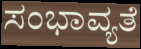
ಸಂಭಾವ್ಯತೆ